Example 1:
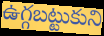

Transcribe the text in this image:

ఉగ్గబట్టుకుని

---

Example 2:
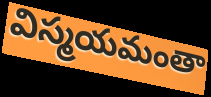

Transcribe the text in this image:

విస్మయమంతా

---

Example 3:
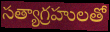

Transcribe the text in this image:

సత్యాగ్రహులతో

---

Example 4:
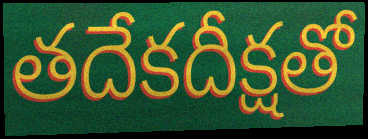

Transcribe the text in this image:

తదేకదీక్షతో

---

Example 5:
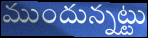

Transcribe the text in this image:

ముందున్నట్టు